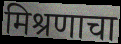
मिश्रणाचा